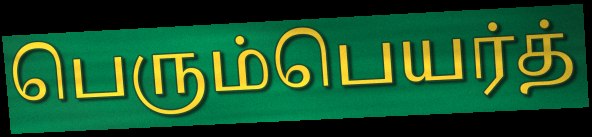
பெரும்பெயர்த்